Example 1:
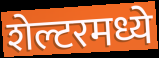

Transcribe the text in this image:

शेल्टरमध्ये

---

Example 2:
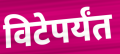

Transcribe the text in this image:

विटेपर्यंत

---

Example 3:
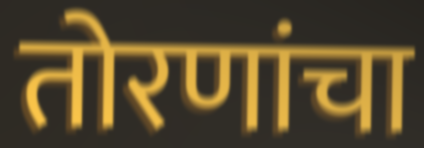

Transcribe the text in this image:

तोरणांचा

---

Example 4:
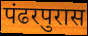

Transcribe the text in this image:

पंढरपुरास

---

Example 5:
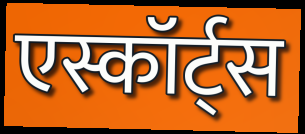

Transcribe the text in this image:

एस्कॉर्ट्स